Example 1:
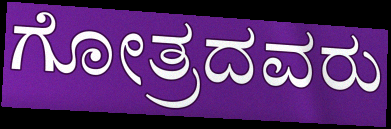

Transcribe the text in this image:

ಗೋತ್ರದವರು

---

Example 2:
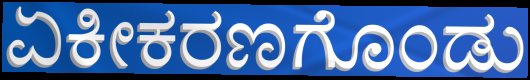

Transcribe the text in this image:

ಏಕೀಕರಣಗೊಂಡು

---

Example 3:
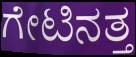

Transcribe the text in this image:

ಗೇಟಿನತ್ತ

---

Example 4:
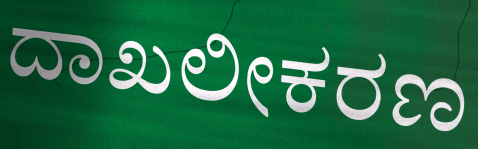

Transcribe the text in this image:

ದಾಖಲೀಕರಣ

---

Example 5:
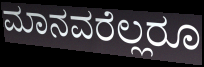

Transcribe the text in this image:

ಮಾನವರೆಲ್ಲರೂ